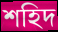
শহিদ